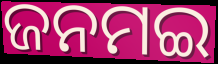
ଜନମଇ